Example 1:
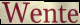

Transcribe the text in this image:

Wente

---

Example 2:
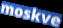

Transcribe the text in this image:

moskve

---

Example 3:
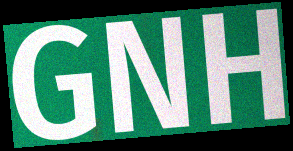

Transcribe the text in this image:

GNH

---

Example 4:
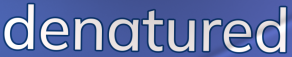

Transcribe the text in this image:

denatured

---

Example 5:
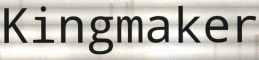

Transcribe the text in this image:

Kingmaker